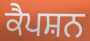
ਕੈਪਸ਼ਨ